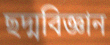
ছদ্মবিজ্ঞান